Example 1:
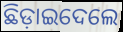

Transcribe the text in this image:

ଛିଡ଼ାଇଦେଲେ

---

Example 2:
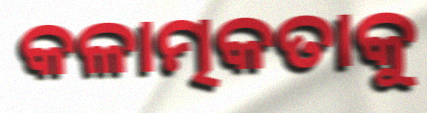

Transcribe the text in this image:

କଳାତ୍ମକତାକୁ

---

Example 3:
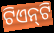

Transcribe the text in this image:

ଟିଏନ୍‌ଟି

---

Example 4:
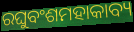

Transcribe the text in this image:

ରଘୁବଂଶମହାକାବ୍ୟ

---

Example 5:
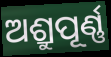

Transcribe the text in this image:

ଅଶ୍ରୁପୂର୍ଣ୍ଣ